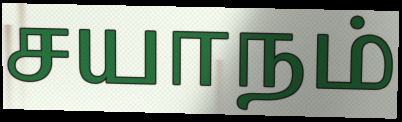
சயாநம்